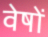
वेषों